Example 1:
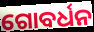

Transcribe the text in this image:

ଗୋବର୍ଧନ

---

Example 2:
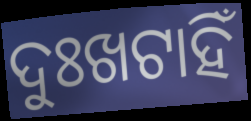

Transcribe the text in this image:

ଦୁଃଖଟାହିଁ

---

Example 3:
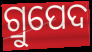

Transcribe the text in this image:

ଗ୍ରୁପେଦ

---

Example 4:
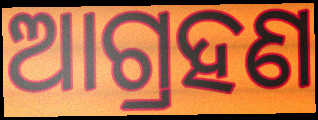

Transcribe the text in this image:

ଆଗ୍ରହଣ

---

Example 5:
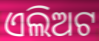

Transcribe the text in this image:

ଏଲିଅଟ